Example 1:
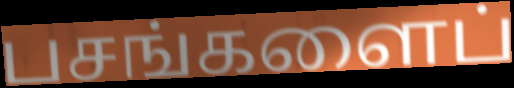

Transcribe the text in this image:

பசங்களைப்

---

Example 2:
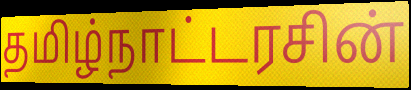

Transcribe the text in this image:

தமிழ்நாட்டரசின்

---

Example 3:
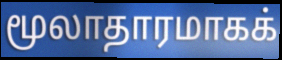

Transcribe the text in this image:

மூலாதாரமாகக்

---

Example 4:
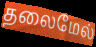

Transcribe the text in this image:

தலைமேல்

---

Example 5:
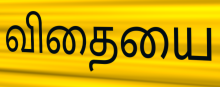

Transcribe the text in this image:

விதையை